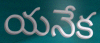
యనేక